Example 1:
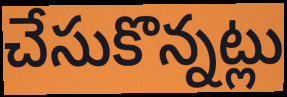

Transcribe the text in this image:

చేసుకొన్నట్లు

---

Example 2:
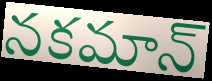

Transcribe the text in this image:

నకమాన్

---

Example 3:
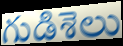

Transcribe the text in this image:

గుడిశెలు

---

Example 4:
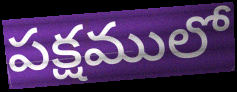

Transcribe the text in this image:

పక్షములో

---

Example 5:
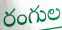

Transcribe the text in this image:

రంగుల